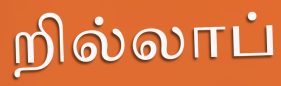
றில்லாப்